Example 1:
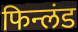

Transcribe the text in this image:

फिन्लंड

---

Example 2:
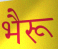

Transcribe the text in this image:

भैरू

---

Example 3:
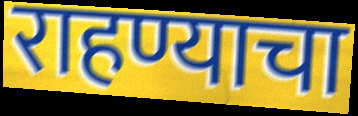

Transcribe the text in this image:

राहण्याचा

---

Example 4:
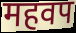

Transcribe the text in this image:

महवप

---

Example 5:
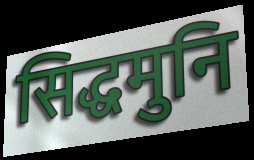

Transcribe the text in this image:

सिद्धमुनि